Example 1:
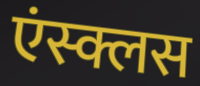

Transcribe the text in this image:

एंस्क्लस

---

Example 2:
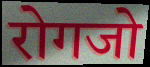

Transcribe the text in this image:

रोगजो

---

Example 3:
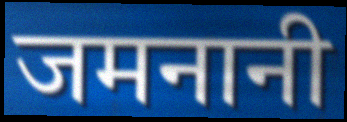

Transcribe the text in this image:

जमनानी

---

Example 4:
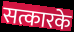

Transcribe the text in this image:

सत्कारके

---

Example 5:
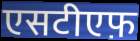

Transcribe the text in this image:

एसटीएफ़